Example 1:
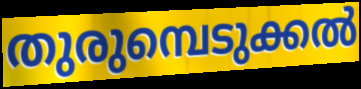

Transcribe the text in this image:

തുരുമ്പെടുക്കൽ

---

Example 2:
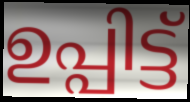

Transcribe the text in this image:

ഉപ്പിട്ട്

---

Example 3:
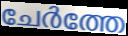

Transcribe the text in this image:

ചേർത്തേ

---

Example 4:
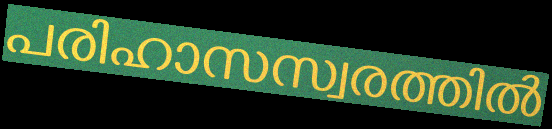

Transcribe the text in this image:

പരിഹാസസ്വരത്തിൽ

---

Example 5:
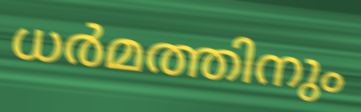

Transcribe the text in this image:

ധർമത്തിനും